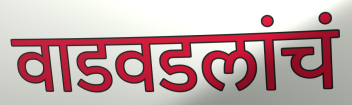
वाडवडलांचं